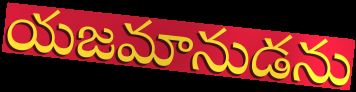
యజమానుడను